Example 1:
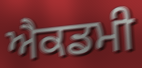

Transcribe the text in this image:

ਐਕਡਮੀ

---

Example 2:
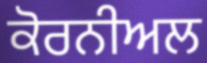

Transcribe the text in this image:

ਕੋਰਨੀਅਲ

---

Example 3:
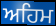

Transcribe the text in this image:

ਅਹਿਮ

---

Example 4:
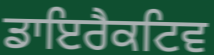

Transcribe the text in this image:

ਡਾਇਰੈਕਟਿਵ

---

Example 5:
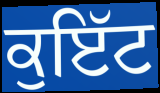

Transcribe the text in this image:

ਕੁਇੱਟ